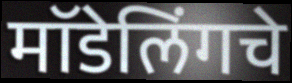
मॉडेलिंगचे